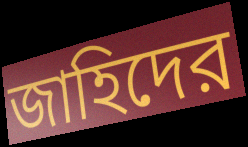
জাহিদের